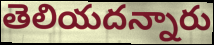
తెలియదన్నారు